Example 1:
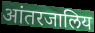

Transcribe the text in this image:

आंतरजालिय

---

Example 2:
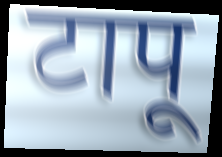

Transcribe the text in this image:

टापू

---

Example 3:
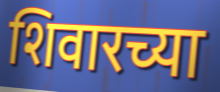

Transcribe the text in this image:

शिवारच्या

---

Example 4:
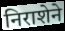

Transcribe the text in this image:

निराशेने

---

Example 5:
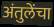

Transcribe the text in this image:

अंतुलेंचा